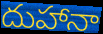
దుహానా